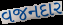
વજનદાર